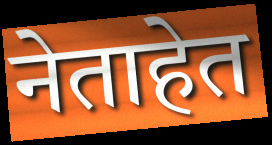
नेताहेत